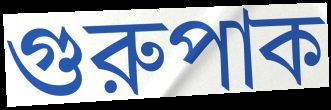
গুরুপাক